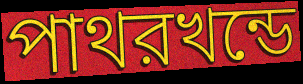
পাথরখন্ডে